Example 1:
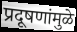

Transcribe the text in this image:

प्रदूषणांमुळे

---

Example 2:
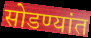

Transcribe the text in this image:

सोडण्यांत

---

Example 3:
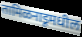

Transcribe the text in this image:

तामिळनाडूमधील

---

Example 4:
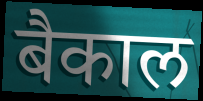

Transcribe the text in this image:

बैकाल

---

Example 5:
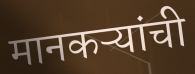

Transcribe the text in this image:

मानकऱ्यांची